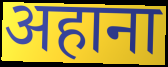
अहाना